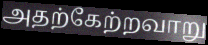
அதற்கேற்றவாறு